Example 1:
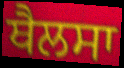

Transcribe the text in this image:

ਥੈਲਸਾ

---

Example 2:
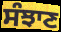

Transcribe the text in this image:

ਸੰਝਾਣ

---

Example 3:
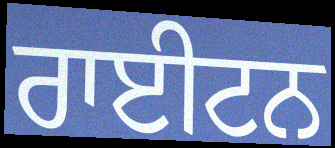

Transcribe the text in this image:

ਰਾਈਟਨ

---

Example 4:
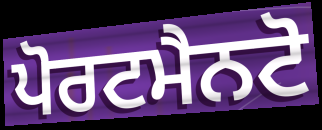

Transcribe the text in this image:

ਪੋਰਟਮੈਨਟੋ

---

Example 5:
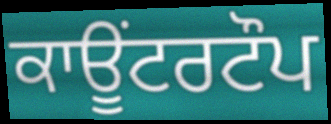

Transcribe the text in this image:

ਕਾਊਂਟਰਟੌਪ